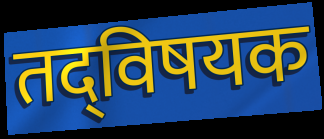
तद्‌विषयक